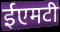
ईएमटी